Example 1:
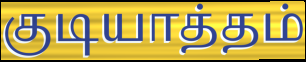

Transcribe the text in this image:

குடியாத்தம்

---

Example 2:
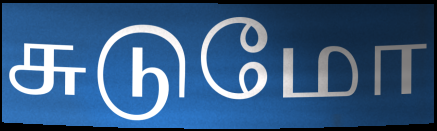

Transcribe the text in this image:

சுடுமோ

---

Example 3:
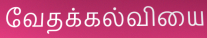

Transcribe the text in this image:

வேதக்கல்வியை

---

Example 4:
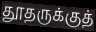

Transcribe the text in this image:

தூதருக்குத்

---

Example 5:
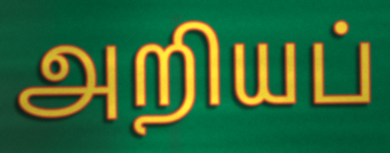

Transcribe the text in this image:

அறியப்